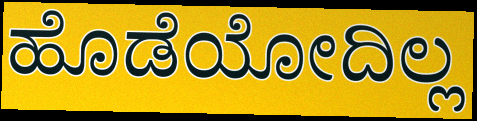
ಹೊಡೆಯೋದಿಲ್ಲ